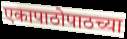
एकापाठोपाठच्या